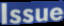
Issue